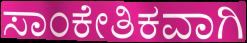
ಸಾಂಕೇತಿಕವಾಗಿ